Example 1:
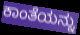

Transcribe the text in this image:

ಕಾಂತೆಯನ್ನು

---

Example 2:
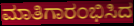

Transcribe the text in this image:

ಮಾತಿಗಾರಂಭಿಸಿದ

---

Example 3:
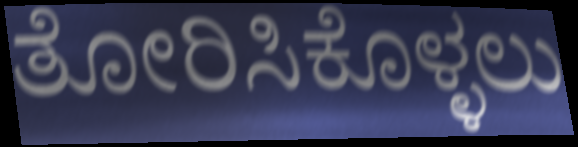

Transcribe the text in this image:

ತೋರಿಸಿಕೊಳ್ಳಲು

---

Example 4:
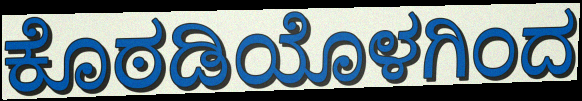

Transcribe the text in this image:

ಕೊಠಡಿಯೊಳಗಿಂದ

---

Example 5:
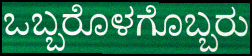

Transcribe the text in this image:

ಒಬ್ಬರೊಳಗೊಬ್ಬರು